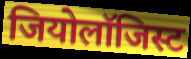
जियोलॉजिस्ट